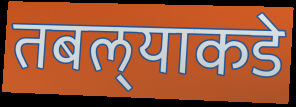
तबल्याकडे